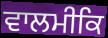
ਵਾਲਮੀਕਿ